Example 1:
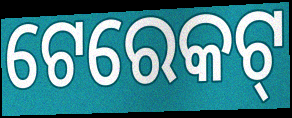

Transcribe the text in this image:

ଟେରେକଟ୍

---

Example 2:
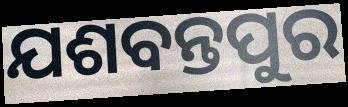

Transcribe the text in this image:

ଯଶବନ୍ତପୁର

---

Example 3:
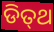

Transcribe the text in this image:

ଡିତ୍‍ଥ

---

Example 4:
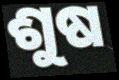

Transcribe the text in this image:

ଶୁଷ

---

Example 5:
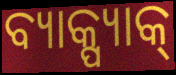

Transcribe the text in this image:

ବ୍ୟାକ୍ପ୍ୟାକ୍